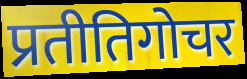
प्रतीतिगोचर